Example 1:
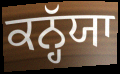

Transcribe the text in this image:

ਕਨ੍ਹੱਯਾ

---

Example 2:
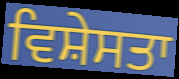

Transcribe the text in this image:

ਵਿਸ਼ੇਸਤਾ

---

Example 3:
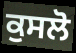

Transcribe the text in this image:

ਕੁਸਲੋ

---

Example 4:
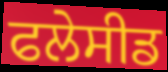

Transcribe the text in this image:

ਫਲੇਸੀਡ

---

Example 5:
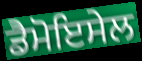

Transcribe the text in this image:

ਡੈਮੋਇਸੇਲ